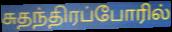
சுதந்திரப்போரில்